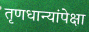
तृणधान्यांपेक्षा